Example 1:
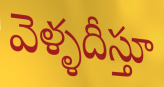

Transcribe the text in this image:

వెళ్ళదీస్తూ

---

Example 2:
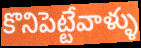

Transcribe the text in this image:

కొనిపెట్టేవాళ్ళు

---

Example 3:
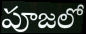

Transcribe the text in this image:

పూజలో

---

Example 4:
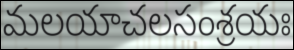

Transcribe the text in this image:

మలయాచలసంశ్రయః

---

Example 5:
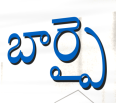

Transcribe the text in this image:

బార్పై